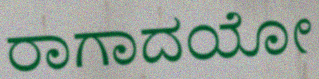
ರಾಗಾದಯೋ